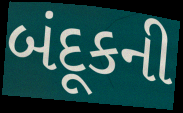
બંદૂકની